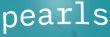
pearls